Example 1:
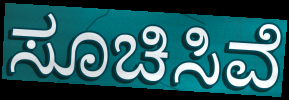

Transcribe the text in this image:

ಸೂಚಿಸಿವೆ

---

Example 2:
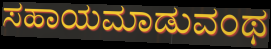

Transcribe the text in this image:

ಸಹಾಯಮಾಡುವಂಥ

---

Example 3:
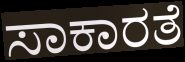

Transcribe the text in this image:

ಸಾಕಾರತೆ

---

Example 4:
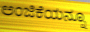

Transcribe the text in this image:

ಅಂಜಿಕೆಯನ್ನೂ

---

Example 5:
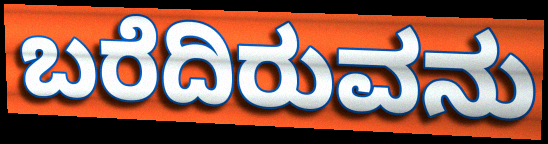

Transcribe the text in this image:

ಬರೆದಿರುವನು